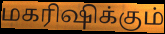
மகரிஷிக்கும்